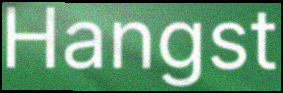
Hangst